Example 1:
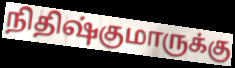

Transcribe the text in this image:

நிதிஷ்குமாருக்கு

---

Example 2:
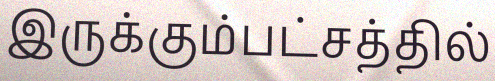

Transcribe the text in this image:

இருக்கும்பட்சத்தில்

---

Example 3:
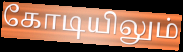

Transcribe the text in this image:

கோடியிலும்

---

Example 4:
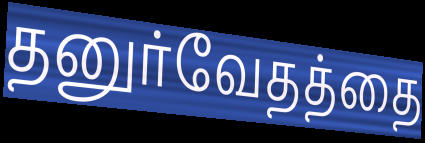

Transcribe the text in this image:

தனுர்வேதத்தை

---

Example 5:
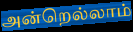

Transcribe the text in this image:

அன்றெல்லாம்